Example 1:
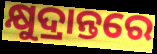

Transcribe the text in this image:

କ୍ଷୁଦ୍ରାନ୍ତରେ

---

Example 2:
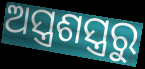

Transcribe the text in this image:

ଅସ୍ତ୍ରଶସ୍ତ୍ରରୁ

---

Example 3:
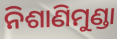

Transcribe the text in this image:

ନିଶାଣିମୁଣ୍ଡା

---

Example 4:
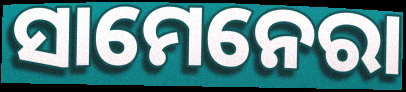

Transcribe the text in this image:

ସାମେନେରା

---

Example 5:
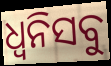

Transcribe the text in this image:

ଧ୍ୱନିସବୁ